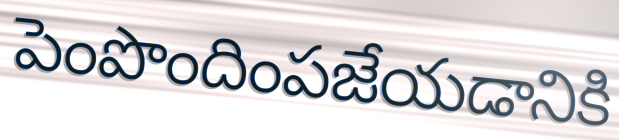
పెంపొందింపజేయడానికి